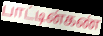
பாட்டின்கண்